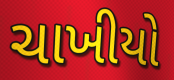
ચાખીયો